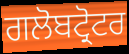
ਗਲੋਬਟ੍ਰੋਟਰ